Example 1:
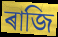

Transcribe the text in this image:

ৰাজি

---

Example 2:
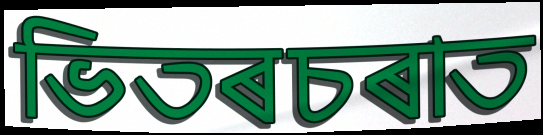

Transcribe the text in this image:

ভিতৰচৰাত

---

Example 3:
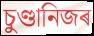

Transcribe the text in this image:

চুণ্ডানিজৰ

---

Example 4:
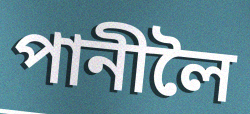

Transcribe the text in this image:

পানীলৈ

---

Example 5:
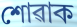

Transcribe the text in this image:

শোৱাক